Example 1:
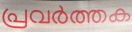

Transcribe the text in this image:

പ്രവർത്തക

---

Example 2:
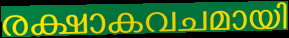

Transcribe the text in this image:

രക്ഷാകവചമായി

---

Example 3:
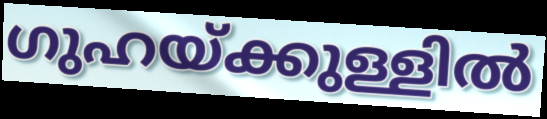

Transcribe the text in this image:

ഗുഹയ്ക്കുള്ളിൽ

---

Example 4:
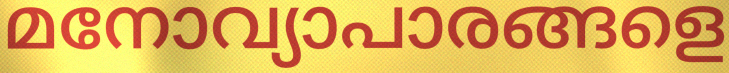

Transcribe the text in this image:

മനോവ്യാപാരങ്ങളെ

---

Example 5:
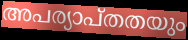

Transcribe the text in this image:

അപര്യാപ്തതയും